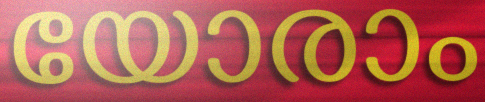
യോരാം